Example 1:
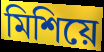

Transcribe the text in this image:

মিশিয়ে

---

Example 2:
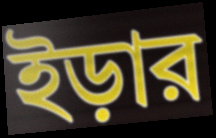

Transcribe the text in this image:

ইড়ার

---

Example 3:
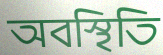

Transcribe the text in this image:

অবস্থিতি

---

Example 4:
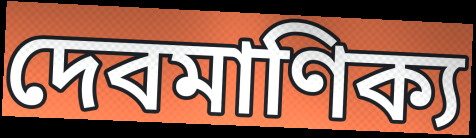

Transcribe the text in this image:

দেবমাণিক্য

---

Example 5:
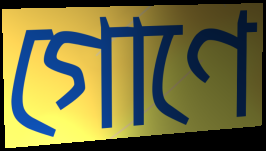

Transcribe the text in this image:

গোণে